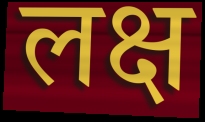
लक्ष